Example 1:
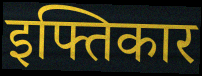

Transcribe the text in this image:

इफ्तिकार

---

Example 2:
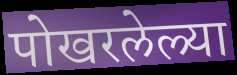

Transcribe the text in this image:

पोखरलेल्या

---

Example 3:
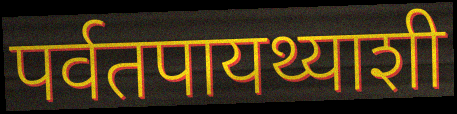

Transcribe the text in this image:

पर्वतपायथ्याशी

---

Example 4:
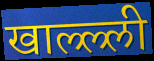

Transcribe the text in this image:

खाल्ल्ली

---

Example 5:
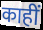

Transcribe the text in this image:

काहीं